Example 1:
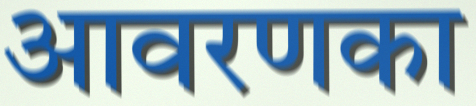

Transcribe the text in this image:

आवरणका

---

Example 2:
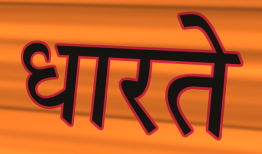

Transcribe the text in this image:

धारते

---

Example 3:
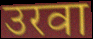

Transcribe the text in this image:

उरवा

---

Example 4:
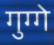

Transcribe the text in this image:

गुग्गे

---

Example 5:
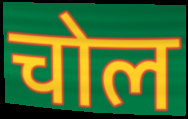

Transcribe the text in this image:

चोल